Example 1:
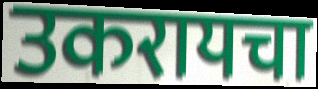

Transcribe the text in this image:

उकरायचा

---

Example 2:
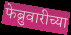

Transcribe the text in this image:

फेब्रुवारीच्या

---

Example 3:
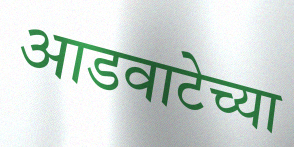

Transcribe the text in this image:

आडवाटेच्या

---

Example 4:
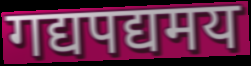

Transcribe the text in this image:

गद्यपद्यमय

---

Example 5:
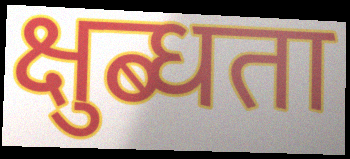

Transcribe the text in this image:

क्षुब्धता